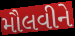
મૌલવીને